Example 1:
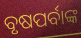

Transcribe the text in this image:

ବୃଷପର୍ବାଙ୍କ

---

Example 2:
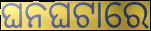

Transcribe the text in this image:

ଘନଘଟାରେ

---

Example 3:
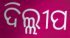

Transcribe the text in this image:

ଦିଲ୍ଲୀପ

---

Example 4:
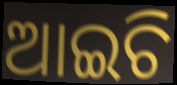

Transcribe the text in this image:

ଆଇଚି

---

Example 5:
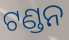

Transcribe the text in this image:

ଟଣ୍ଡନ